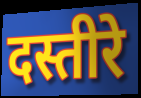
दस्तीरे